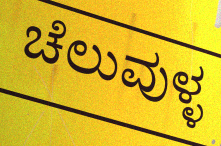
ಚೆಲುವುಳ್ಳ